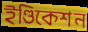
ইণ্ডিকেশন